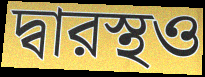
দ্বারস্থও